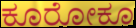
ಕೂರೋಕೂ